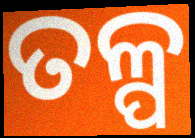
ତଳ୍ପ